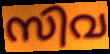
സിവ